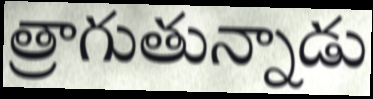
త్రాగుతున్నాడు